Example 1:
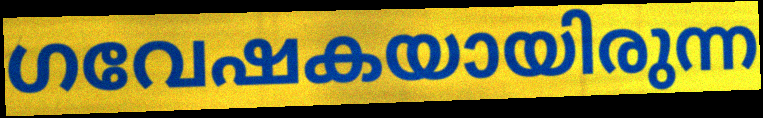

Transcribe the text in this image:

ഗവേഷകയായിരുന്ന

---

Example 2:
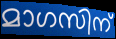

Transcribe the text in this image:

മാഗസിന്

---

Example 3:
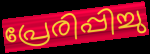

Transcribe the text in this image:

പ്രേരിപ്പിച്ചു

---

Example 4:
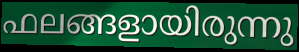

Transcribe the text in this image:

ഫലങ്ങളായിരുന്നു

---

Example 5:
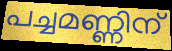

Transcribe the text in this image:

പച്ചമണ്ണിന്